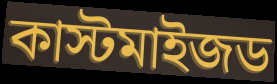
কাস্টমাইজড